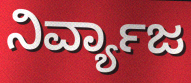
ನಿರ್ವ್ಯಾಜ